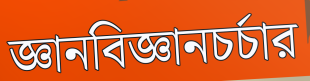
জ্ঞানবিজ্ঞানচর্চার